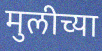
मुलीच्‍या